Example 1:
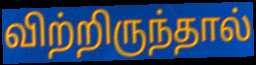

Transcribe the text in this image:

விற்றிருந்தால்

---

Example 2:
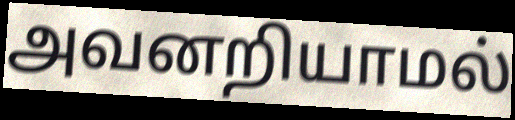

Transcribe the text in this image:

அவனறியாமல்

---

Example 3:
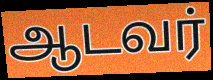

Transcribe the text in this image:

ஆடவர்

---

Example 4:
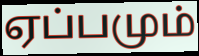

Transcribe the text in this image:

ஏப்பமும்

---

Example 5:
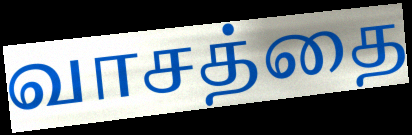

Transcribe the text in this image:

வாசத்தை